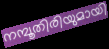
നമ്പൂതിരിയുമായി